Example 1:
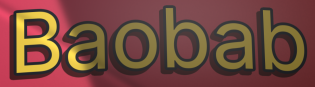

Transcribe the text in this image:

Baobab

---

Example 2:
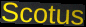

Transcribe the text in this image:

Scotus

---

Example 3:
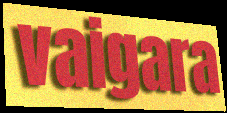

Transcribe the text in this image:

vaigara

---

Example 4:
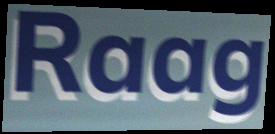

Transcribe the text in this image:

Raag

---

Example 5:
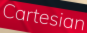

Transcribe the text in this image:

Cartesian